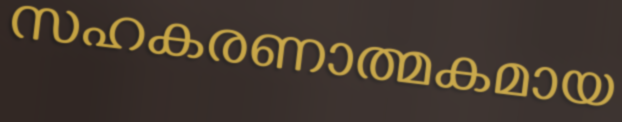
സഹകരണാത്മകമായ